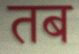
तब